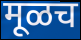
मूळच